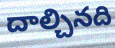
దాల్చినది